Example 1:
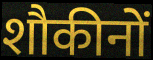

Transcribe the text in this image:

शौकीनों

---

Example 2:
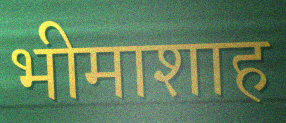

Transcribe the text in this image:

भीमाशाह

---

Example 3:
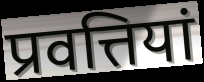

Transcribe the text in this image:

प्रवत्तियां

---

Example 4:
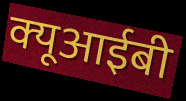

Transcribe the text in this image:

क्यूआईबी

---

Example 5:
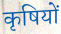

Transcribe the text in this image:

कृषियों